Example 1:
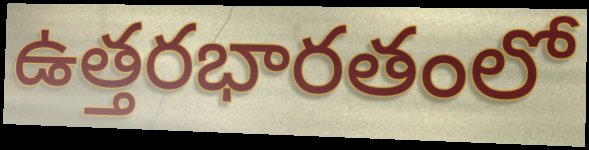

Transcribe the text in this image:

ఉత్తరభారతంలో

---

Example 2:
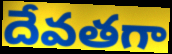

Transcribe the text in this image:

దేవతగా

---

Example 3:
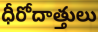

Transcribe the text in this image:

ధీరోదాత్తులు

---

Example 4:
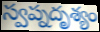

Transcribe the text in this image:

స్వప్నదృశ్యం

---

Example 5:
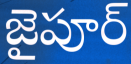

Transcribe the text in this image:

జైపూర్